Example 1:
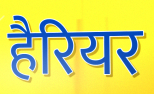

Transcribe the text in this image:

हैरियर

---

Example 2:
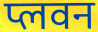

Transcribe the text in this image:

प्लवन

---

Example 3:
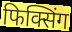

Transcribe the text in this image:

फिक्सिंग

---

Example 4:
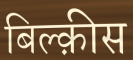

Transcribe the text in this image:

बिल्क़ीस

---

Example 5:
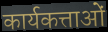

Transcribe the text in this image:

कार्यकत्ताओं